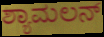
ಶ್ಯಾಮಲನ್